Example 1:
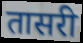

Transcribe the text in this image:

तासरी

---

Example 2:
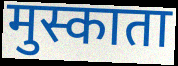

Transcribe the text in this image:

मुस्काता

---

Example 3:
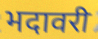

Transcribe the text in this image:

भदावरी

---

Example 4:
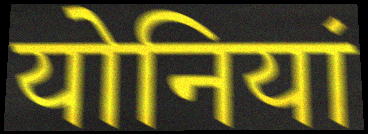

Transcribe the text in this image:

योनियां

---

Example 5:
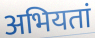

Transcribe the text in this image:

अभियतां